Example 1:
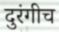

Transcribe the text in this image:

दुरंगीच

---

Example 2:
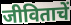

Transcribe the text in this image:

जीविताचें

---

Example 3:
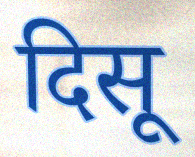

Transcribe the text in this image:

दिसू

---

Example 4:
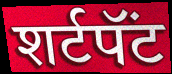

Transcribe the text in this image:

शर्टपॅंट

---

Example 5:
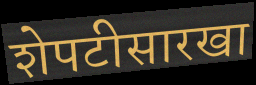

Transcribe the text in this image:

शेपटीसारखा